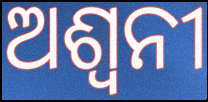
ଅଶ୍ୱନୀ